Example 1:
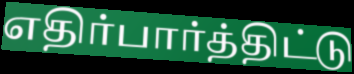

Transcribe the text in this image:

எதிர்பார்த்திட்டு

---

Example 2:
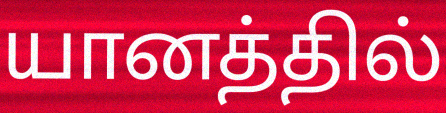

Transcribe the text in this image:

யானத்தில்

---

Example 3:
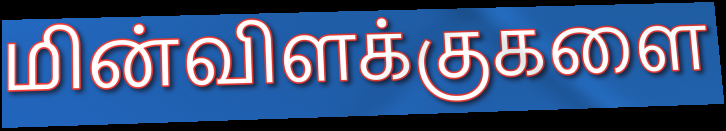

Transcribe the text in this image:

மின்விளக்குகளை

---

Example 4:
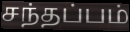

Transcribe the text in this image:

சந்தப்பம்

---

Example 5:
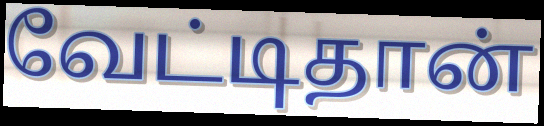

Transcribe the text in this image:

வேட்டிதான்